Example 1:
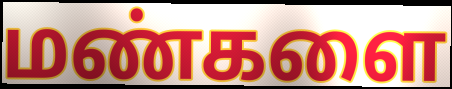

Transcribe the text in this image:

மண்களை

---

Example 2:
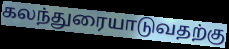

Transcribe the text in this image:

கலந்துரையாடுவதற்கு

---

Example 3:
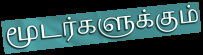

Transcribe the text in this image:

மூடர்களுக்கும்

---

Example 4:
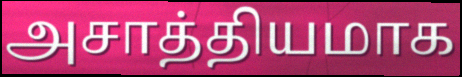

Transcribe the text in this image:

அசாத்தியமாக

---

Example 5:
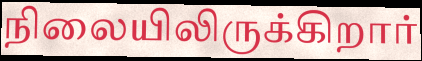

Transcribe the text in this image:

நிலையிலிருக்கிறார்